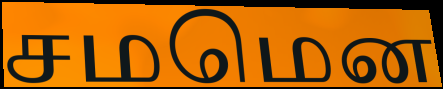
சமமென